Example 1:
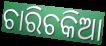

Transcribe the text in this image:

ଚାରିଚକିଆ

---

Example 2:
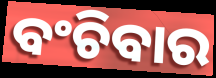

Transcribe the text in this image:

ବଂଚିବାର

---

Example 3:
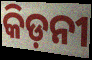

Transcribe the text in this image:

କିଡ଼ନୀ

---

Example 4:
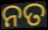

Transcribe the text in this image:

ନତ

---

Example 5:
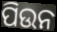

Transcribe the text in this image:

ପିଉନ